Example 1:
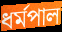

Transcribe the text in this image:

ধর্মপাল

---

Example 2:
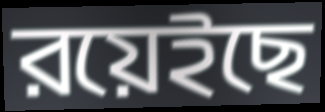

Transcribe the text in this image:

রয়েইছে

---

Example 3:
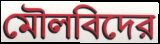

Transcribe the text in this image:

মৌলবিদের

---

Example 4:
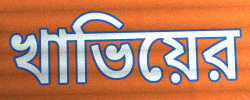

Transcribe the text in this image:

খাভিয়ের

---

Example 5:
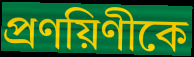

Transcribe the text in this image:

প্রণয়িণীকে